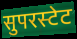
सुपरस्टेट